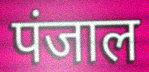
पंजाल